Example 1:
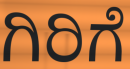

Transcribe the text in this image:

ಗಿರಿಗೆ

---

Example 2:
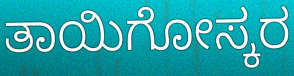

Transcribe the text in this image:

ತಾಯಿಗೋಸ್ಕರ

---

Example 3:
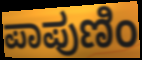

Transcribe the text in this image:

ಪಾಪುಣಿಂ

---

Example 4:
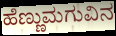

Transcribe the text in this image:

ಹೆಣ್ಣುಮಗುವಿನ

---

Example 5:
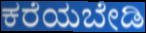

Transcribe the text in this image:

ಕರೆಯಬೇಡಿ